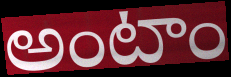
అంటాం